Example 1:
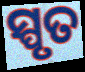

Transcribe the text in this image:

ସ୍ପୃତ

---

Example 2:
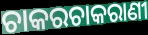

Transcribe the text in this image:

ଚାକରଚାକରାଣୀ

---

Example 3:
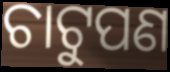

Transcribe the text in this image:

ଚାଟୁପଣ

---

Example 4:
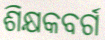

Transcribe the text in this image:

ଶିକ୍ଷକବର୍ଗ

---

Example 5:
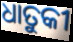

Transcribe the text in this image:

ଧାତୁକୀ